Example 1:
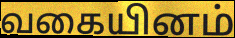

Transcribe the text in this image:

வகையினம்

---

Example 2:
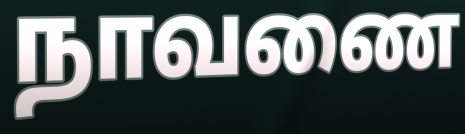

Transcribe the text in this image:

நாவணை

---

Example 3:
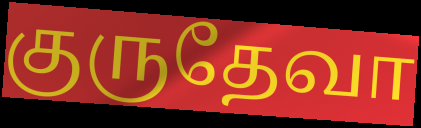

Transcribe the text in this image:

குருதேவா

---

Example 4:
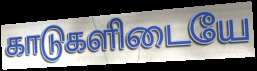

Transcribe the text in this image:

காடுகளிடையே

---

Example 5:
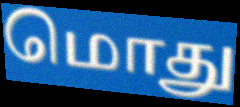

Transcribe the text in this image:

மொது